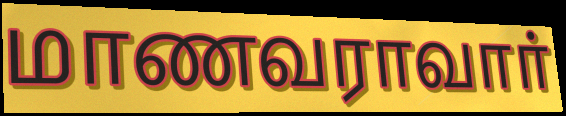
மாணவராவார்